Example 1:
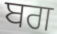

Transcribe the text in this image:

ਬਗ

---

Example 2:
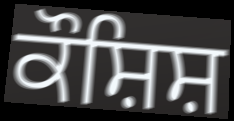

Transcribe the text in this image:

ਕੌਸ਼ਿਸ਼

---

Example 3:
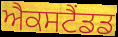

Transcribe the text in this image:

ਐਕਸਟੈਂਡਡ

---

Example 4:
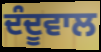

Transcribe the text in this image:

ਦੰਦੂਵਾਲ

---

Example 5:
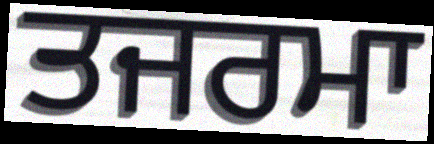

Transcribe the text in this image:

ਤਜਰਮਾ